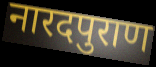
नारदपुराण